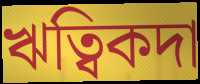
ঋত্বিকদা